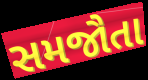
સમજૌતા